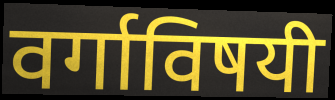
वर्गाविषयी